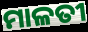
ମାଳତୀ